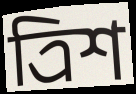
ত্ৰিশ